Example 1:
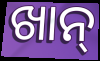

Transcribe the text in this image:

ଖାନ୍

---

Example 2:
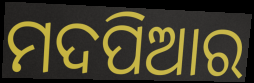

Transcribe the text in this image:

ମଦପିଆର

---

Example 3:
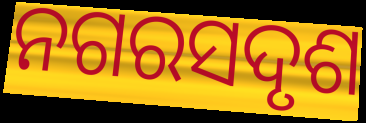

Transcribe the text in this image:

ନଗରସଦୃଶ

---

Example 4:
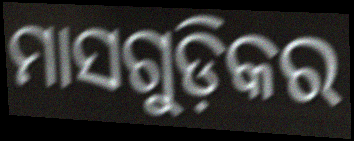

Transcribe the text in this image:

ମାସଗୁଡ଼ିକର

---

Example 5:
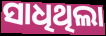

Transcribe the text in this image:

ସାଧିଥିଲା